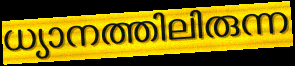
ധ്യാനത്തിലിരുന്ന